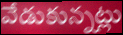
వేడుకున్నట్లు